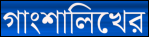
গাংশালিখের